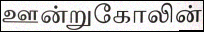
ஊன்றுகோலின்